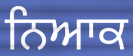
ਨਿਆਕ